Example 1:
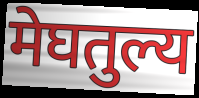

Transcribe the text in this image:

मेघतुल्य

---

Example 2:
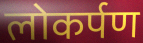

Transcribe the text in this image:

लोकर्पण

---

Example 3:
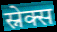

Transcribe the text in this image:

स्नेक्स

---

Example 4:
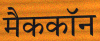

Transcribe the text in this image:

मैककॉन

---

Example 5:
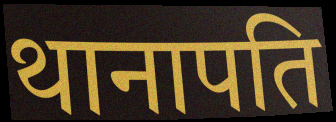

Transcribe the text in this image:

थानापति